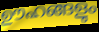
ഊഹങ്ങളും